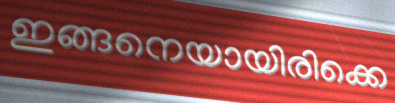
ഇങ്ങനെയായിരിക്കെ